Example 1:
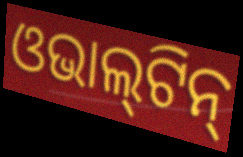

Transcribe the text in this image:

ଓଭାଲ୍‍ଟିନ୍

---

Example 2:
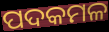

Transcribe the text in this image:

ପଦକମଳ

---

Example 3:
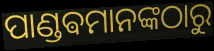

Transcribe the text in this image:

ପାଣ୍ଡଵମାନଙ୍କଠାରୁ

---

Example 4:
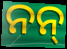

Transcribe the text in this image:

ନନ୍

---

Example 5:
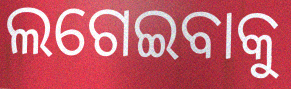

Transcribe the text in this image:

ଲଗେଇବାକୁ